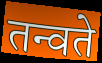
तन्वते